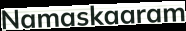
Namaskaaram